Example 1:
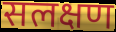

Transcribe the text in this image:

सलक्षण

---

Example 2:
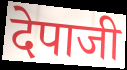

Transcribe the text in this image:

देपाजी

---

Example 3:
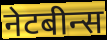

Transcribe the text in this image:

नेटबीन्स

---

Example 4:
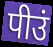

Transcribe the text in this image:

पीउं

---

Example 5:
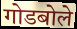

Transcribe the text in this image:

गोडबोले